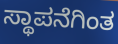
ಸ್ಥಾಪನೆಗಿಂತ